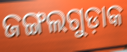
ଜଙ୍ଗଲଗୁଡ଼ାକ